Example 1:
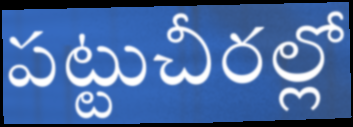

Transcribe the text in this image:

పట్టుచీరల్లో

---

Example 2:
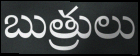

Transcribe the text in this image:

బుత్రులు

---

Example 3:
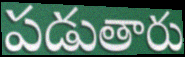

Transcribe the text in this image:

పడుతారు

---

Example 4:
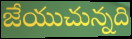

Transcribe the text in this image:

జేయుచున్నది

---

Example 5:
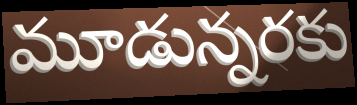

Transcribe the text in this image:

మూడున్నరకు